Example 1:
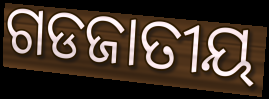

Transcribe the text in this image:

ଗଡଜାତୀୟ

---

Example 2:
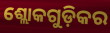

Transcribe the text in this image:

ଶ୍ଲୋକଗୁଡ଼ିକର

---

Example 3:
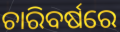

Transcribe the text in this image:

ଚାରିବର୍ଷରେ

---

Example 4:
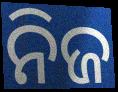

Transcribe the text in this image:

ନିଜ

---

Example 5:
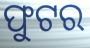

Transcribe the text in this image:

ଫୁଟର